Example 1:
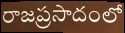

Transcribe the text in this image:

రాజప్రసాదంలో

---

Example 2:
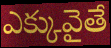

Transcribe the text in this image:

ఎక్కువైతే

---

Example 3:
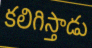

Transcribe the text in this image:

కలిగిస్తాడు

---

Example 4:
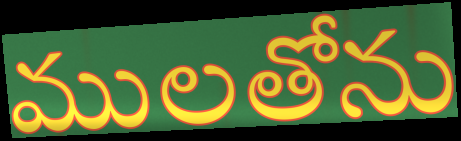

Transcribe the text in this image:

ములతోను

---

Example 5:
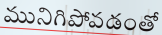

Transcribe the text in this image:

మునిగిపోవడంతో